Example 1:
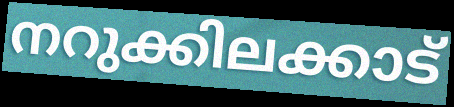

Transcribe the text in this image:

നറുക്കിലക്കാട്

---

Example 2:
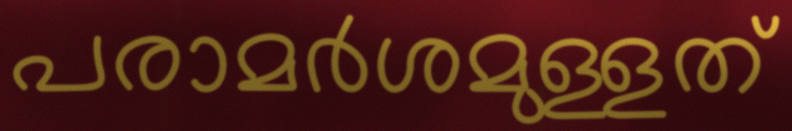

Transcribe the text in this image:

പരാമർശമുള്ളത്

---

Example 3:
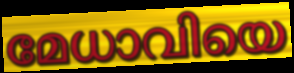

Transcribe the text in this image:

മേധാവിയെ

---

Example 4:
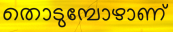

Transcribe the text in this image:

തൊടുമ്പോഴാണ്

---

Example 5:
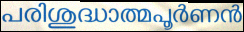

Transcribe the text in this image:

പരിശുദ്ധാത്മപൂർണൻ